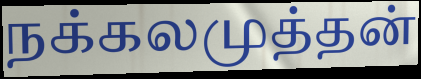
நக்கலமுத்தன்